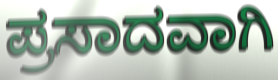
ಪ್ರಸಾದವಾಗಿ